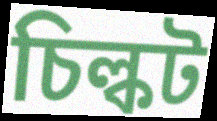
চিল্কট